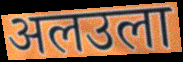
अलउला